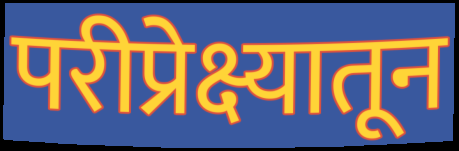
परीप्रेक्ष्यातून